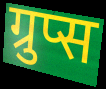
ग्रुप्स